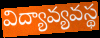
విద్యావ్యవస్థ